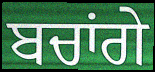
ਬਚਾਂਗੇ